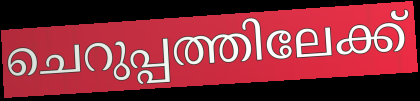
ചെറുപ്പത്തിലേക്ക്